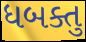
ધબક્તુ